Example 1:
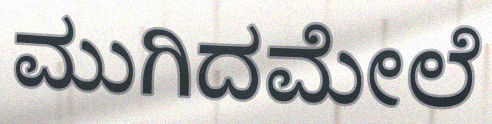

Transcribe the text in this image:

ಮುಗಿದಮೇಲೆ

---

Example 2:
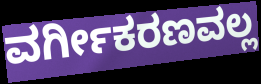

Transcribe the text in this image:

ವರ್ಗೀಕರಣವಲ್ಲ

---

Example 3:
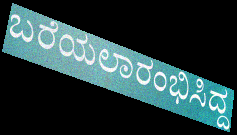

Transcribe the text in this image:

ಬರೆಯಲಾರಂಭಿಸಿದ್ದ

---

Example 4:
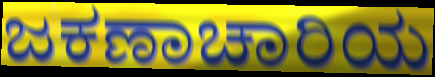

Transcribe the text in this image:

ಜಕಣಾಚಾರಿಯ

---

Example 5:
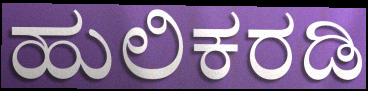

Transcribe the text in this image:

ಹುಲಿಕರಡಿ